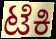
ಟೆಕಿ